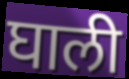
घाली